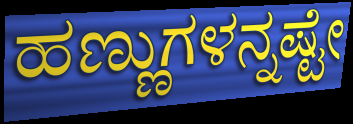
ಹಣ್ಣುಗಳನ್ನಷ್ಟೇ